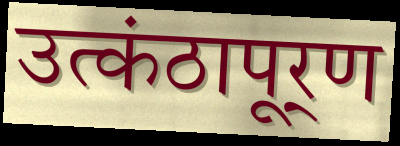
उत्कंठापूर्ण